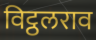
विट्ठलराव